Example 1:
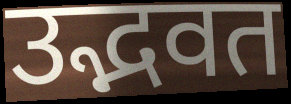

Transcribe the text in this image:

उद्भवत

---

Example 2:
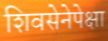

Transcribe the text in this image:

शिवसेनेपेक्षा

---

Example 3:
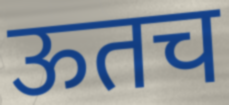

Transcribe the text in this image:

ऊतच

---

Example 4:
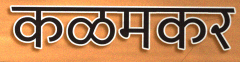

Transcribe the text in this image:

कळमकर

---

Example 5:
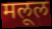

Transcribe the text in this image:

मलूल